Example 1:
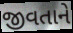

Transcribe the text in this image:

જીવતાને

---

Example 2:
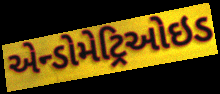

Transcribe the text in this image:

એન્ડોમેટ્રિઓઇડ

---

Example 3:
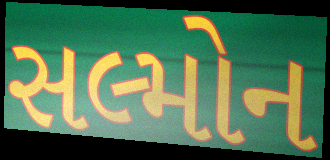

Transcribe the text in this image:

સલ્મોન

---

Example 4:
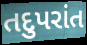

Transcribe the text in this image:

તદુપરાંત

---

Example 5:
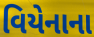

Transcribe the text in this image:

વિયેનાના